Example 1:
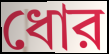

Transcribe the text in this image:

ধোর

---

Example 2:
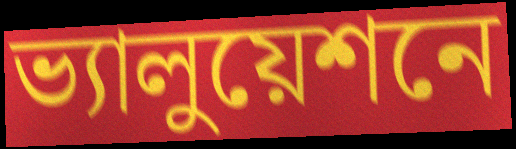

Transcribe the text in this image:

ভ্যালুয়েশনে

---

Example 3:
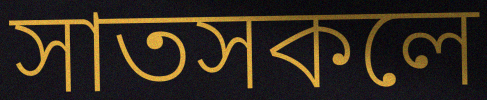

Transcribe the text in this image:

সাতসকলে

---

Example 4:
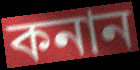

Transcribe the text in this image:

কনান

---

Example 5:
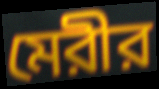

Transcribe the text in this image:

মেরীর